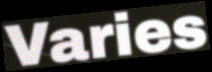
Varies